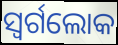
ସ୍ୱର୍ଗଲୋକ